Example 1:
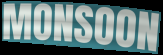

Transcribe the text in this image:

MONSOON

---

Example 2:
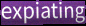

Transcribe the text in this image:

expiating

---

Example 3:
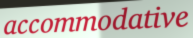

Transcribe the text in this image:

accommodative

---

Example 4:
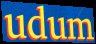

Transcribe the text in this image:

udum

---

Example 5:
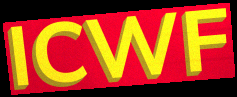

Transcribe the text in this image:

ICWF